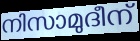
നിസാമുദീന്